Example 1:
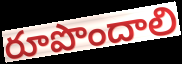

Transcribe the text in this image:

రూపొందాలి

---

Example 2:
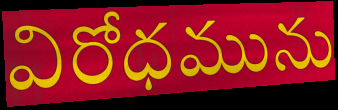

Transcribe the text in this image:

విరోధమును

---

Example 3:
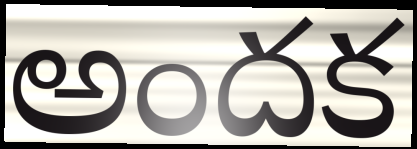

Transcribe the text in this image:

అందక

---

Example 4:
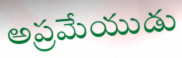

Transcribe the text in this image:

అప్రమేయుడు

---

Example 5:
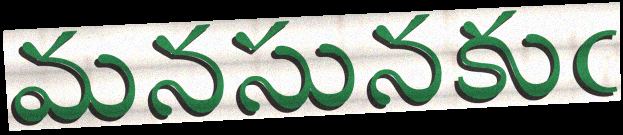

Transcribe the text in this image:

మనసునకుఁ